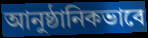
আনুষ্ঠানিকভাবে